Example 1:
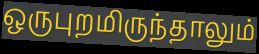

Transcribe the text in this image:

ஒருபுறமிருந்தாலும்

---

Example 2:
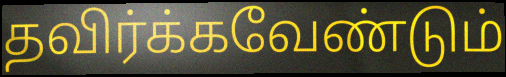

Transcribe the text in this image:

தவிர்க்கவேண்டும்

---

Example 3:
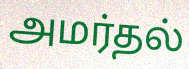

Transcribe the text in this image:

அமர்தல்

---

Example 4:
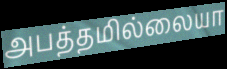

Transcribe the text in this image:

அபத்தமில்லையா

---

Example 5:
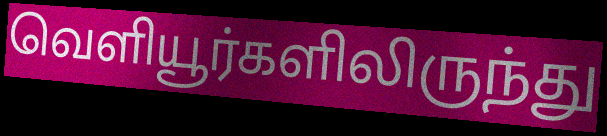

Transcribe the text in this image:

வெளியூர்களிலிருந்து